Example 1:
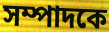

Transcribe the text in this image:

সম্পাদকে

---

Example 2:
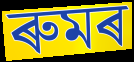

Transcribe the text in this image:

ৰুমৰ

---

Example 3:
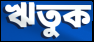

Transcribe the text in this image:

ঋতুক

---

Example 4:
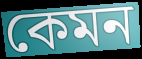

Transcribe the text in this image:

কেমন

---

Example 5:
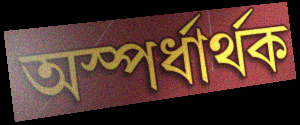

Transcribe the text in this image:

অস্পৰ্ধাৰ্থক